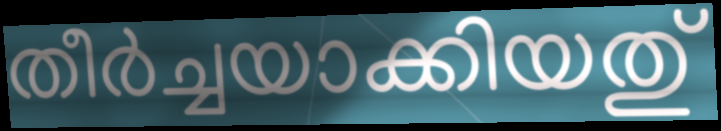
തീർച്ചയാക്കിയതു്